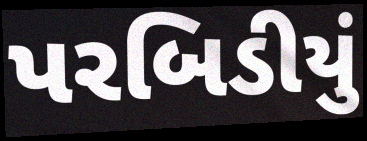
પરબિડીયું